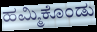
ಹಮ್ಮಿಕೊಂಡು